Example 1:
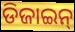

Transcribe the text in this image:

ଡିଜାଇନ୍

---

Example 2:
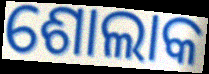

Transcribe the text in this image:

ଶୋଲାକ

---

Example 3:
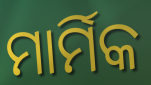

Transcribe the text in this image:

ମାର୍ମିକ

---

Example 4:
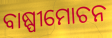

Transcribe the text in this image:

ବାଷ୍ପୀମୋଚନ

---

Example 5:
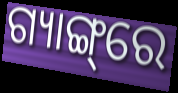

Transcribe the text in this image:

ଗ୍ୟାଙ୍ଗ୍‌ରେ